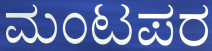
ಮಂಟಪರ